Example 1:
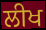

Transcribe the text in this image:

ਲੀਖ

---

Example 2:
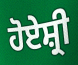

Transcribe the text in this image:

ਹੋਏਸ਼੍ਰੀ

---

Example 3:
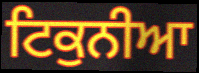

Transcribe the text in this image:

ਟਿਕੁਨੀਆ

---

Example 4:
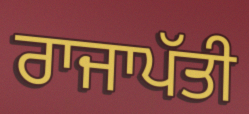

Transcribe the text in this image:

ਰਾਜਾਪੱਤੀ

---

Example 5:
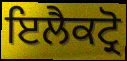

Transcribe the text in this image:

ਇਲੈਕਟ੍ਰੋ